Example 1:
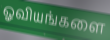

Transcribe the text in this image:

ஓவியங்களை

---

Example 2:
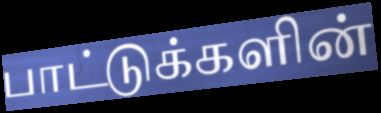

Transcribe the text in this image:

பாட்டுக்களின்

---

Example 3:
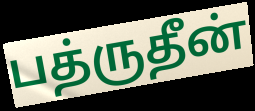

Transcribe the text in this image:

பத்ருதீன்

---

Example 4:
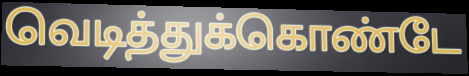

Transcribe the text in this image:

வெடித்துக்கொண்டே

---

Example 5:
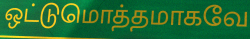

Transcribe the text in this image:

ஒட்டுமொத்தமாகவே